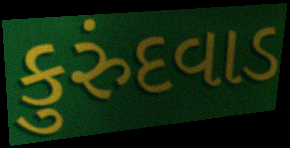
કુરુંદવાડ